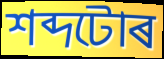
শব্দটোৰ